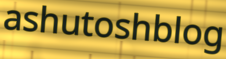
ashutoshblog